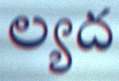
ల్యద